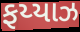
ફય્યાઝ